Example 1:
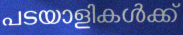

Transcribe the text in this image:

പടയാളികൾക്ക്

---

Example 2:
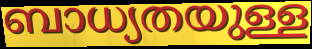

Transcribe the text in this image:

ബാധ്യതയുള്ള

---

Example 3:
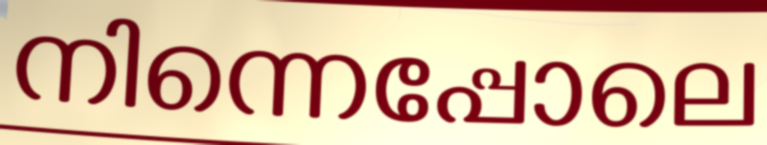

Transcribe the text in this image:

നിന്നെപ്പോലെ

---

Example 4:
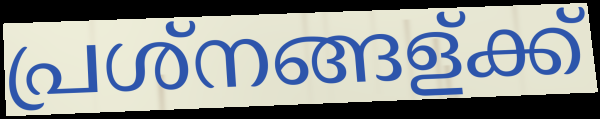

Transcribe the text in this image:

പ്രശ്നങ്ങള്ക്ക്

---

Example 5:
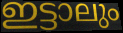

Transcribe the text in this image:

ഇട്ടാലും